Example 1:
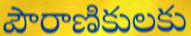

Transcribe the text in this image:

పౌరాణికులకు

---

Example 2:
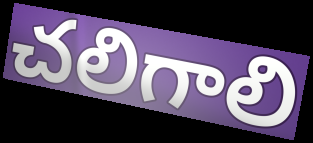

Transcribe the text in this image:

చలిగాలి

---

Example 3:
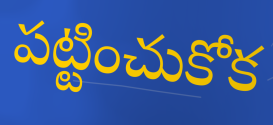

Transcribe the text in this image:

పట్టించుకోక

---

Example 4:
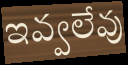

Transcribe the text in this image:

ఇవ్వలేవు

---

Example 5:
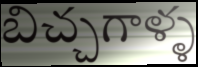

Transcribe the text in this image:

బిచ్చగాళ్ళ